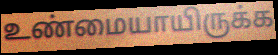
உண்மையாயிருக்க